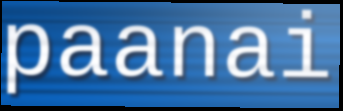
paanai